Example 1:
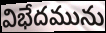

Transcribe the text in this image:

విభేదమును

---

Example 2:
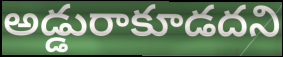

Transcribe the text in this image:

అడ్డురాకూడదని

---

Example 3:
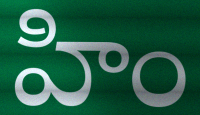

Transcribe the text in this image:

హిం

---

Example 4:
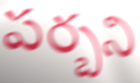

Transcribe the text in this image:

పర్బని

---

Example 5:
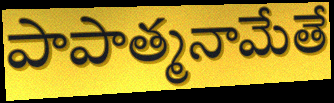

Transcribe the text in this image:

పాపాత్మనామేతే